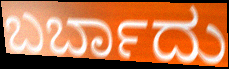
ಬರ್ಬಾದು